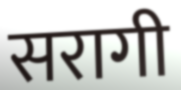
सरागी